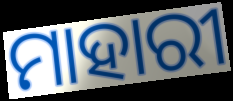
ମାହାରୀ